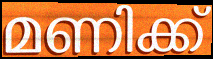
മണിക്ക്